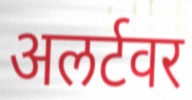
अलर्टवर